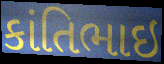
કાંતિભાઇ